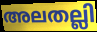
അലതല്ലി